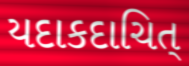
યદાકદાચિત્